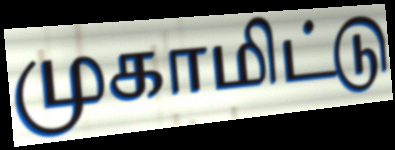
முகாமிட்டு